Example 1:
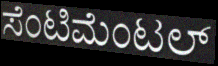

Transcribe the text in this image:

ಸೆಂಟಿಮೆಂಟಲ್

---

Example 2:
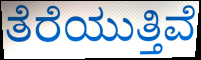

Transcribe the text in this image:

ತೆರೆಯುತ್ತಿವೆ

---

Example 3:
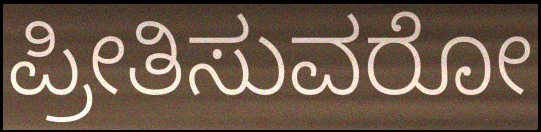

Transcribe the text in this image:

ಪ್ರೀತಿಸುವರೋ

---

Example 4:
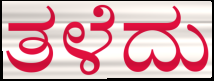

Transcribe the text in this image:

ತಳೆದು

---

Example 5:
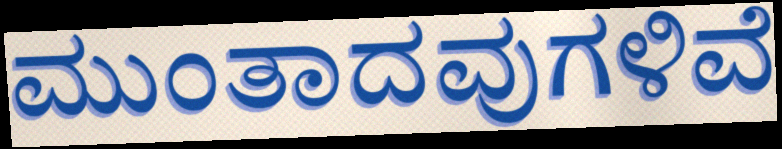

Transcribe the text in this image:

ಮುಂತಾದವುಗಳಿವೆ